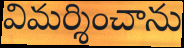
విమర్శించాను